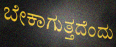
ಬೇಕಾಗುತ್ತದೆಂದು